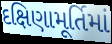
દક્ષિણામૂર્તિમાં